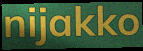
nijakko